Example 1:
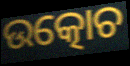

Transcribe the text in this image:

ଉତ୍କୋଚ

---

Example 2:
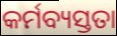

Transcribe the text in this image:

କର୍ମବ୍ୟସ୍ତତା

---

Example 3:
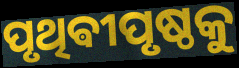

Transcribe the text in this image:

ପୃଥିଵୀପୃଷ୍ଠକୁ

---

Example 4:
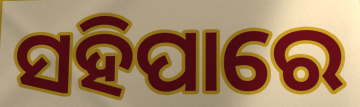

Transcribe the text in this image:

ସହିପାରେ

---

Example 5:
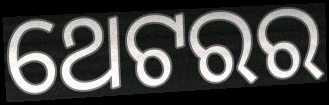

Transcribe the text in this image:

ଥେଟରର